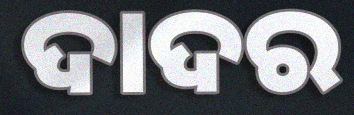
ଦାଦର